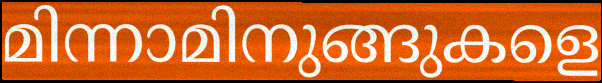
മിന്നാമിനുങ്ങുകളെ